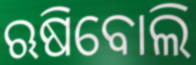
ଋଷିବୋଲି